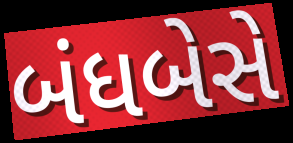
બંધબેસે